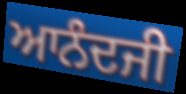
ਆਨੰਦਜੀ